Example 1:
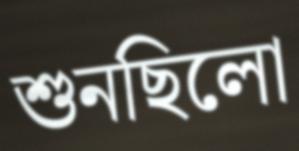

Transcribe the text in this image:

শুনছিলো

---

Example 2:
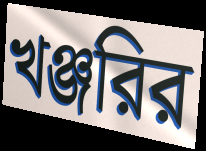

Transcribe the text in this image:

খঞ্জরির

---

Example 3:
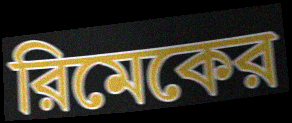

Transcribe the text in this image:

রিমেকের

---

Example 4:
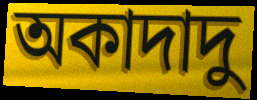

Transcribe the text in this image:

অকাদাদু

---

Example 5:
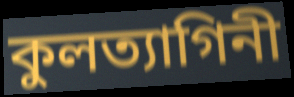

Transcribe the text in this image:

কুলত্যাগিনী